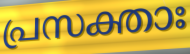
പ്രസക്താഃ